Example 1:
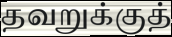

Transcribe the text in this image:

தவறுக்குத்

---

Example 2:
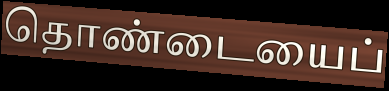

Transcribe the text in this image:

தொண்டையைப்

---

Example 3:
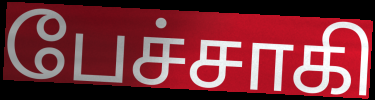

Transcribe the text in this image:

பேச்சாகி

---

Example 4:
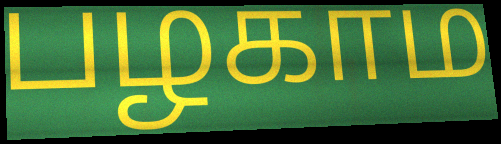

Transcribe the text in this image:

பழகாம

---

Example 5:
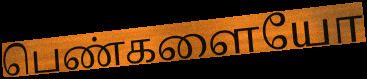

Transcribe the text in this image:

பெண்களையோ